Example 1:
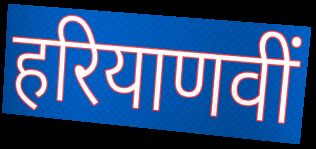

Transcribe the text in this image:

हरियाणवीं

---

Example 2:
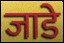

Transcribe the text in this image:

जाडे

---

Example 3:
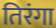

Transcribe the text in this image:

तिरंगा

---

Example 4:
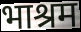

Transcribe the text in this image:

भाश्रम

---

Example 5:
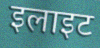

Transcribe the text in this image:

इलाइट